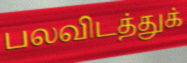
பலவிடத்துக்